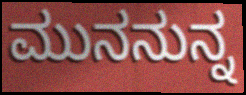
ಮುನನುನ್ನ